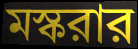
মস্করার